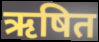
ऋषित